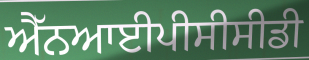
ਐੱਨਆਈਪੀਸੀਸੀਡੀ